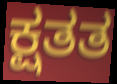
ಕ್ಷತತ